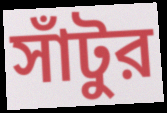
সাঁটুর